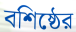
বশিষ্ঠের